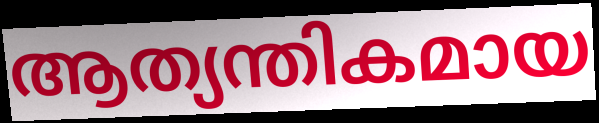
ആത്യന്തികമായ